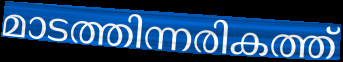
മാടത്തിന്നരികത്ത്